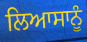
ਲਿਆਸਾਨੂੰ